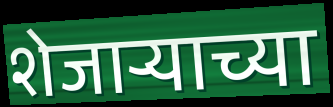
शेजाऱ्याच्या